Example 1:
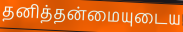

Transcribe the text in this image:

தனித்தன்மையுடைய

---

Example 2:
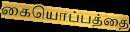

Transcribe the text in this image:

கையொப்பத்தை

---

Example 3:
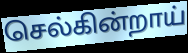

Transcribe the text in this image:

செல்கின்றாய்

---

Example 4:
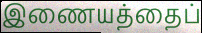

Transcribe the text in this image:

இணையத்தைப்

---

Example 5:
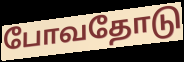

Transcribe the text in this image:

போவதோடு